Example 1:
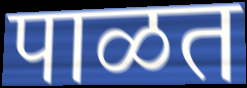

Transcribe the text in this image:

पाळत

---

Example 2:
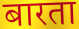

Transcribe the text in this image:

बारता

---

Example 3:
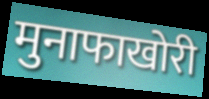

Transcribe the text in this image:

मुनाफाखोरी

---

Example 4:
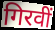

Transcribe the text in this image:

गिरवीं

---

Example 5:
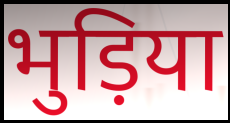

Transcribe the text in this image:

भुड़िया